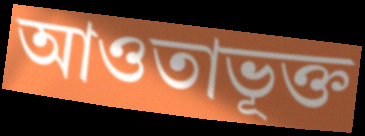
আওতাভূক্ত